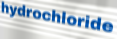
hydrochloride